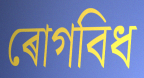
ৰোগবিধ